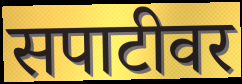
सपाटीवर